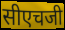
सीएचजी